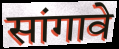
सांगावे